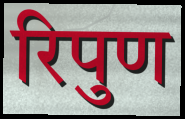
रिपुण